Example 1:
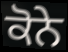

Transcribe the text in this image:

ਕੋਨੇ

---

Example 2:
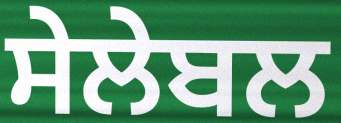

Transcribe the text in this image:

ਸੇਲੇਬਲ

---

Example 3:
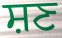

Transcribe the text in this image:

ਸ਼ਣ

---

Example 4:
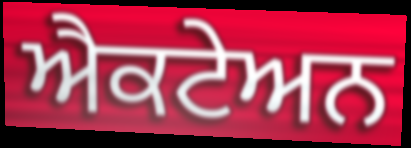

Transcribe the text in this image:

ਐਕਟੇਅਨ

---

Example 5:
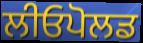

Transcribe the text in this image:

ਲੀਓਪੋਲਡ